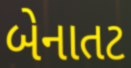
બેનાતટ